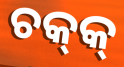
ଚକ୍‌କ୍